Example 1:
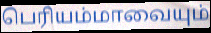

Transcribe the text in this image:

பெரியம்மாவையும்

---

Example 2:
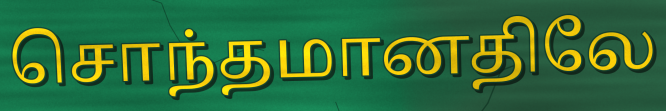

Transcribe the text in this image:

சொந்தமானதிலே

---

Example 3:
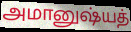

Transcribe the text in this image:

அமானுஷ்யத்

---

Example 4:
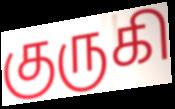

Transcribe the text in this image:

குருகி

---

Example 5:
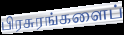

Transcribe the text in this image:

பிரசுரங்களைப்